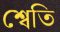
শ্বেতি